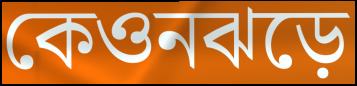
কেওনঝড়ে